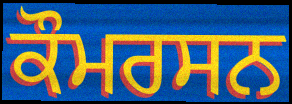
ਕੌਮਰਸਨ